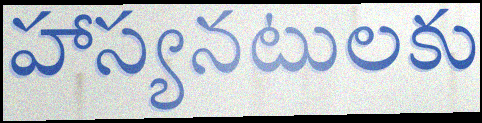
హాస్యనటులకు